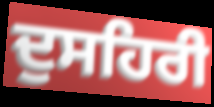
ਦੁਸਹਿਰੀ